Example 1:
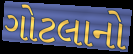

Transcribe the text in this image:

ગોટલાનો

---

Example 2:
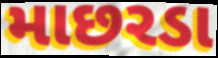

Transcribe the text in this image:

માછરડા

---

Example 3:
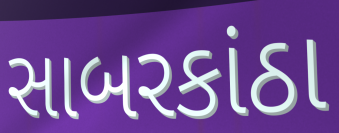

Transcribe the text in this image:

સાબરકાંઠા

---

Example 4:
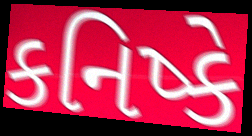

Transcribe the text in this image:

કનિષ્કે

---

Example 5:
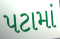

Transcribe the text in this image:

પટામાં